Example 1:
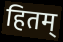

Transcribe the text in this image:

हितम्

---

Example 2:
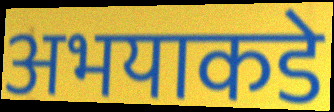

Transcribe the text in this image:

अभयाकडे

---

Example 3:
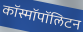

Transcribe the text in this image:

कॉस्मॉपॉलिटन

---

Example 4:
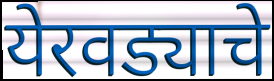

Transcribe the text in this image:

येरवड्याचे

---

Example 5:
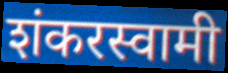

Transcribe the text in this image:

शंकरस्वामी